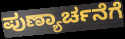
ಪುಣ್ಯಾರ್ಚನೆಗೆ